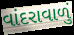
વાંદરાવાળું